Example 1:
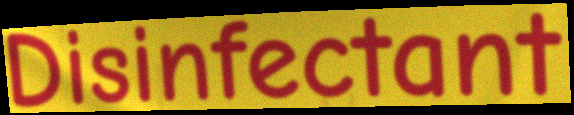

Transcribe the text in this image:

Disinfectant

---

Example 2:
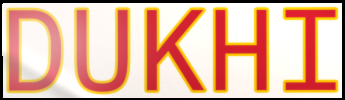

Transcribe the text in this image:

DUKHI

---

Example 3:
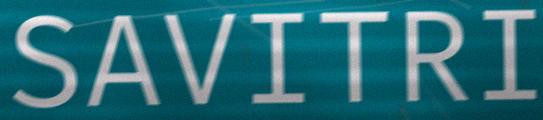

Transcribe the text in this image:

SAVITRI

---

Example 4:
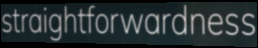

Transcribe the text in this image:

straightforwardness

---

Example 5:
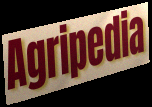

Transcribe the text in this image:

Agripedia